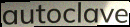
autoclave